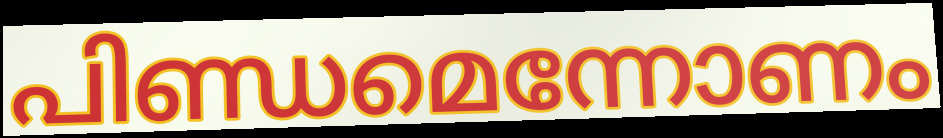
പിണ്ഡമെന്നോണം